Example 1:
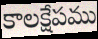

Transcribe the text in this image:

కాలక్షేపము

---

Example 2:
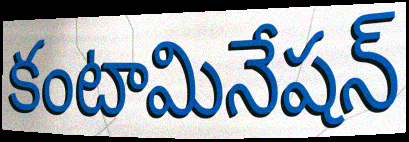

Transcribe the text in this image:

కంటామినేషన్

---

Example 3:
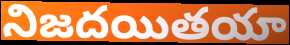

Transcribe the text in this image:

నిజదయితయా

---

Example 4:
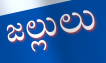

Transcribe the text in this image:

జల్లులు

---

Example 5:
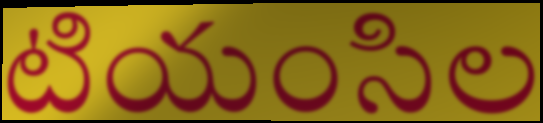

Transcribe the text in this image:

టియంసిల